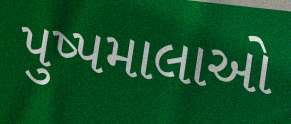
પુષ્પમાલાઓ